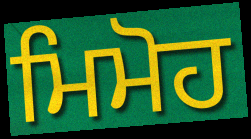
ਮਿਮੋਹ